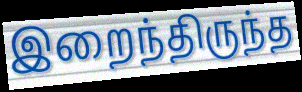
இறைந்திருந்த